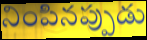
నింపినప్పుడు